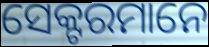
ସେକ୍ଟରମାନେ